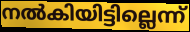
നൽകിയിട്ടില്ലെന്ന്